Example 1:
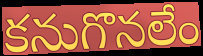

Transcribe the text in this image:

కనుగొనలేం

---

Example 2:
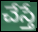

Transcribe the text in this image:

చేస్తే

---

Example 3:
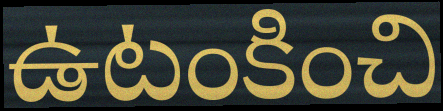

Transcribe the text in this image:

ఉటంకించి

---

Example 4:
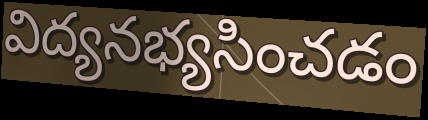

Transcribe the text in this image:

విద్యనభ్యసించడం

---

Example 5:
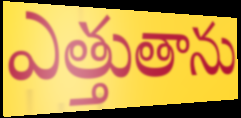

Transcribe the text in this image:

ఎత్తుతాను